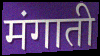
मंगाती